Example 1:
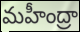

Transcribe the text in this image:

మహీంద్రా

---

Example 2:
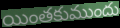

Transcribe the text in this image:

యింతకుముందు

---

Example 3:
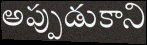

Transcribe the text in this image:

అప్పుడుకాని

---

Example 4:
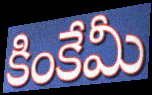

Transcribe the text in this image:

కింకేమీ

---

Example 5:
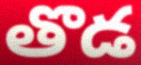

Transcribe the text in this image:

తొడ